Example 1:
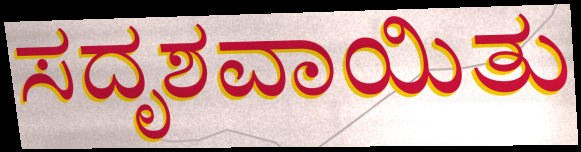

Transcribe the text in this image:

ಸದೃಶವಾಯಿತು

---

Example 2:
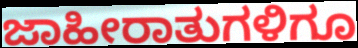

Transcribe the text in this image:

ಜಾಹೀರಾತುಗಳಿಗೂ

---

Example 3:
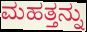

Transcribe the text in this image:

ಮಹತ್ತನ್ನು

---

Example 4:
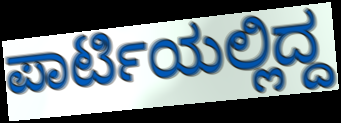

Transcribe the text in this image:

ಪಾರ್ಟಿಯಲ್ಲಿದ್ದ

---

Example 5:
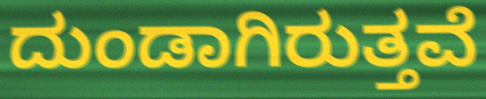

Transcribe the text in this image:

ದುಂಡಾಗಿರುತ್ತವೆ